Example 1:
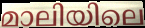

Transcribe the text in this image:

മാലിയിലെ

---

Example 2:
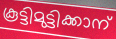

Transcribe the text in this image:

കൂട്ടിമുട്ടിക്കാന്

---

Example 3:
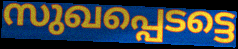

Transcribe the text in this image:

സുഖപ്പെടട്ടെ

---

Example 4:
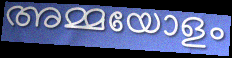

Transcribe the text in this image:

അമ്മയോളം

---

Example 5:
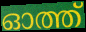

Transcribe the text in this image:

ഓത്ത്